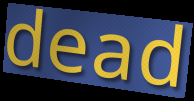
dead